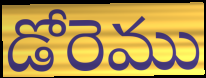
డోరెము